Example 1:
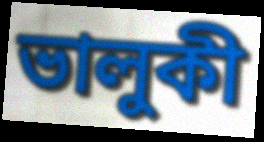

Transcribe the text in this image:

ভালুকী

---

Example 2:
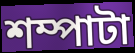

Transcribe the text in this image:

শম্পাটা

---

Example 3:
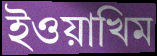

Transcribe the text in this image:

ইওয়াখিম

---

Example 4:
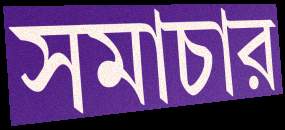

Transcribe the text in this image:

সমাচার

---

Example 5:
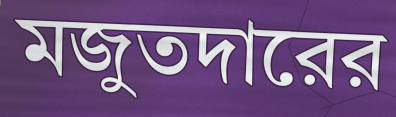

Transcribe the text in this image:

মজুতদারের